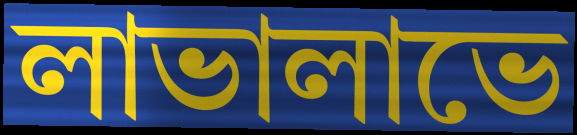
লাভালাভে